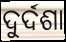
ଦୁର୍ଦଶା